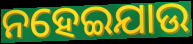
ନହେଇଯାଉ